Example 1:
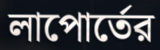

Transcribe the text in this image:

লাপোর্তের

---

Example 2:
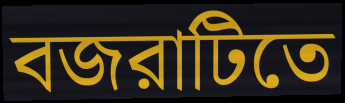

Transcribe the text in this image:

বজরাটিতে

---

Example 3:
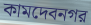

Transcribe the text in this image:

কামদেবনগর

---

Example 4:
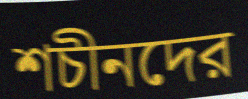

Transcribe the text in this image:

শচীনদের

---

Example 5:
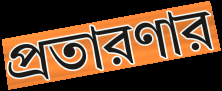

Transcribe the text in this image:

প্রতারণার